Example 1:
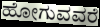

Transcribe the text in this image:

ಹೋಗುವವರೆ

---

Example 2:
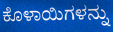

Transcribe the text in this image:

ಕೊಳಾಯಿಗಳನ್ನು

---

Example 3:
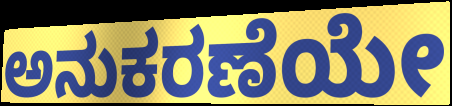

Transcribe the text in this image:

ಅನುಕರಣೆಯೇ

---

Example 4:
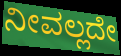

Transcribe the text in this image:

ನೀವಲ್ಲದೇ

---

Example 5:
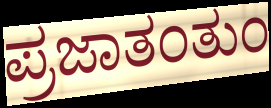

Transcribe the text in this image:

ಪ್ರಜಾತಂತುಂ